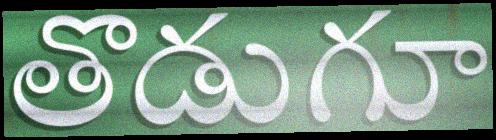
తొడుగూ